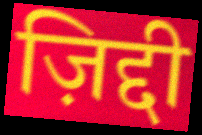
ज़िद्दी